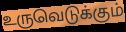
உருவெடுக்கும்